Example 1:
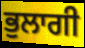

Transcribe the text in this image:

ਭੁਲਾਗੀ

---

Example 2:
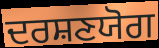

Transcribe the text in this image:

ਦਰਸ਼ਣਯੋਗ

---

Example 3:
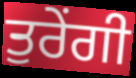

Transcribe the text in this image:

ਤੁਰੇਂਗੀ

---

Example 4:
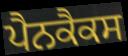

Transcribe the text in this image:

ਪੈਨਕੈਕਸ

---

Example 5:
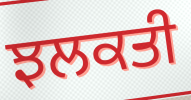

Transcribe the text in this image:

ਝਲਕਤੀ